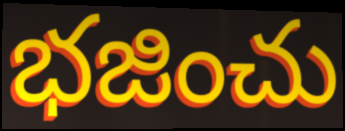
భజించు